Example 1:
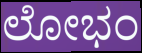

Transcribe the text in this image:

ಲೋಭಂ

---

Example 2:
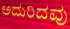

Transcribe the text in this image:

ಅದುರಿದವು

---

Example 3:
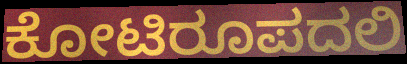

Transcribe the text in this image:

ಕೋಟಿರೂಪದಲಿ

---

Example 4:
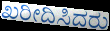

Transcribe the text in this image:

ಖರೀದಿಸಿದರು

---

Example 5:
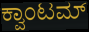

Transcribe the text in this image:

ಕ್ವಾಂಟಮ್